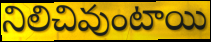
నిలిచివుంటాయి